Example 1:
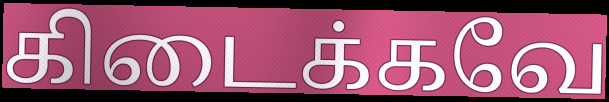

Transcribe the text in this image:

கிடைக்கவே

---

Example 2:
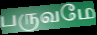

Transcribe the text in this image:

பருவமே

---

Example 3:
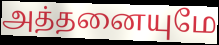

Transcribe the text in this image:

அத்தனையுமே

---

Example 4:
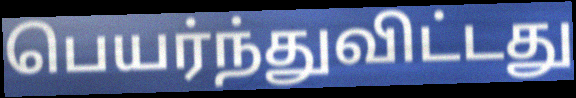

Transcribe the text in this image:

பெயர்ந்துவிட்டது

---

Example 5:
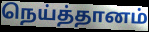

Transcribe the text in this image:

நெய்த்தானம்